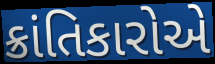
ક્રાંતિકારોએ